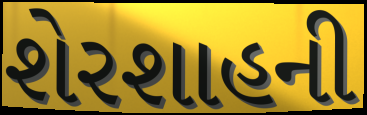
શેરશાહની